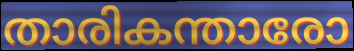
താരികന്താരോ